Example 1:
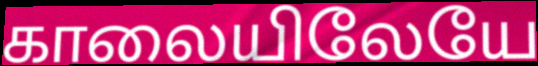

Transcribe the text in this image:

காலையிலேயே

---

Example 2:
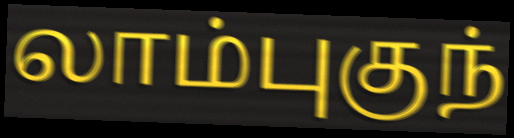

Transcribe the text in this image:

லாம்புகுந்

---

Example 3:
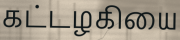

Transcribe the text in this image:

கட்டழகியை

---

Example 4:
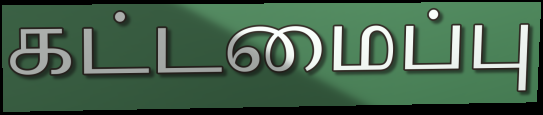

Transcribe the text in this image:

கட்டமைப்பு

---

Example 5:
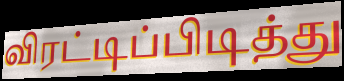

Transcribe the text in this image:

விரட்டிப்பிடித்து